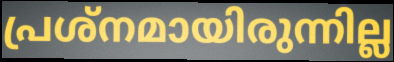
പ്രശ്നമായിരുന്നില്ല